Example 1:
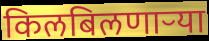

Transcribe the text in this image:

किलबिलणाऱ्या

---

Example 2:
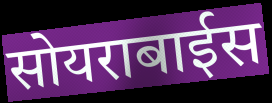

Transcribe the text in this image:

सोयराबाईस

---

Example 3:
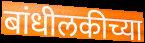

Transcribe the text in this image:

बांधीलकीच्या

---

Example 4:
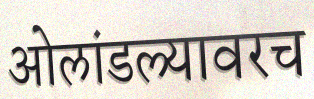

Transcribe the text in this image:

ओलांडल्यावरच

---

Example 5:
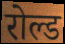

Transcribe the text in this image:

रोल्ड